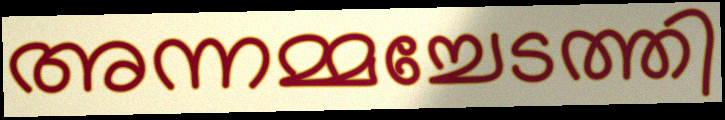
അന്നമ്മച്ചേടത്തി